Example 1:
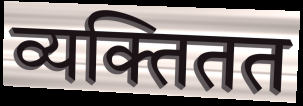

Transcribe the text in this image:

व्यक्तितत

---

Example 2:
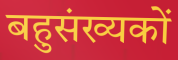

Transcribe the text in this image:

बहुसंख्यकों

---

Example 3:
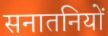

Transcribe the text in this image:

सनातनियों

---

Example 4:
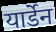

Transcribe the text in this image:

यार्डेन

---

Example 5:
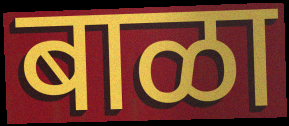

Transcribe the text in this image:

बाळा